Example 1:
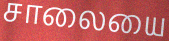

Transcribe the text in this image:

சாலையை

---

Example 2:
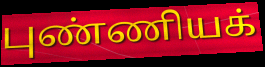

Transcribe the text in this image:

புண்ணியக்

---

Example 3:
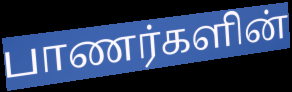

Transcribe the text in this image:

பாணர்களின்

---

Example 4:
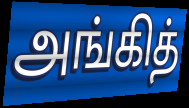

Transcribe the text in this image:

அங்கித்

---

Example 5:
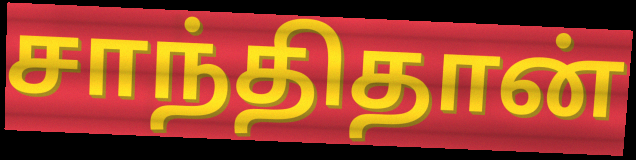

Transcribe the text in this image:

சாந்திதான்